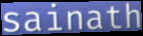
sainath